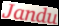
Jandu